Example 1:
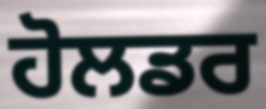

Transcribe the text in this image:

ਹੋਲਡਰ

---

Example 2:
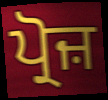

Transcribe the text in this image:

ਪ੍ਰੋਜ਼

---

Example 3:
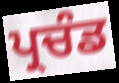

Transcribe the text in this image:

ਪ੍ਰਚੰਡ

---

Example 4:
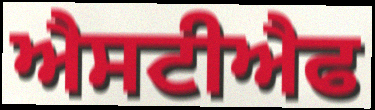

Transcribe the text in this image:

ਐਸਟੀਐਫ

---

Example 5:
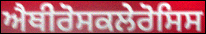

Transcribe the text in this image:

ਐਥੀਰੋਸਕਲੇਰੋਸਿਸ